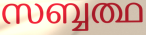
സബ്ബത്ഥ